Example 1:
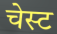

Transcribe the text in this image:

चेस्‍ट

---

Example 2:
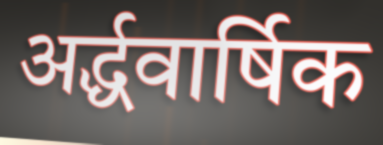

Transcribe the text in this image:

अर्द्धवार्षिक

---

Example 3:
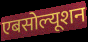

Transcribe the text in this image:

एबसोल्यूशन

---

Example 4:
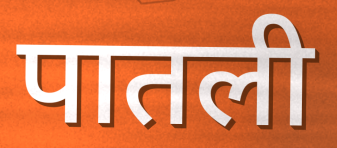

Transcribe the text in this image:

पातली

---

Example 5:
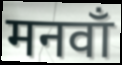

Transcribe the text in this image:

मनवाँ